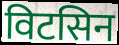
विटसिन